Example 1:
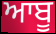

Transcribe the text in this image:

ਆਬੂ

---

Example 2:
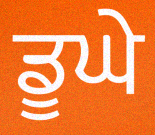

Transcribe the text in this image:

ਡੂਘੇ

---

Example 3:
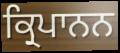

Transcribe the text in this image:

ਕ੍ਰਿਪਾਨਨ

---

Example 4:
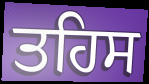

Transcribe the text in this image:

ਤਹਿਸ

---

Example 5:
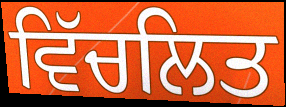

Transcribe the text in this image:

ਵਿੱਚਲਿਤ